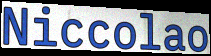
Niccolao